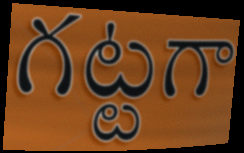
గట్టగా